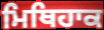
ਮਿਥਿਹਾਕ